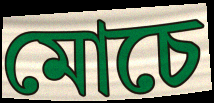
মোচে